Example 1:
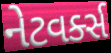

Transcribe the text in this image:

નેટવર્ક્સ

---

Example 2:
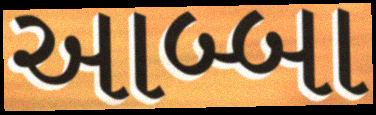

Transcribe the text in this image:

આબ્બા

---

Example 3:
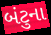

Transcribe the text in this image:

બંટુના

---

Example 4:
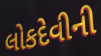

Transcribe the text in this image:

લોકદેવીની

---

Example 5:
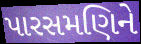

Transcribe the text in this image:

પારસમણિને